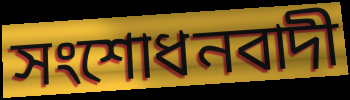
সংশোধনবাদী